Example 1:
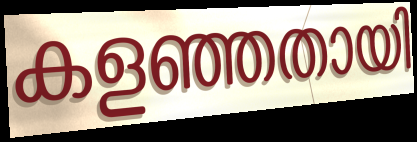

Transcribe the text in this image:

കളഞ്ഞതായി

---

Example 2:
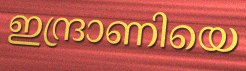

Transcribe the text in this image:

ഇന്ദ്രാണിയെ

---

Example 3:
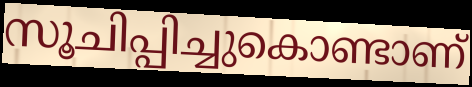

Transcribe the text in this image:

സൂചിപ്പിച്ചുകൊണ്ടാണ്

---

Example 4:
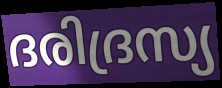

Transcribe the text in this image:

ദരിദ്രസ്യ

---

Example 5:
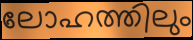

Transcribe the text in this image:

ലോഹത്തിലും